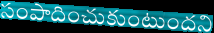
సంపాదించుకుంటుందని